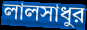
লালসাধুর